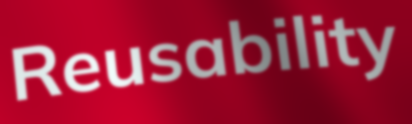
Reusability